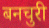
बनचुरी